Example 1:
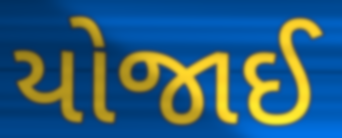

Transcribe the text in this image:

યોજાઈ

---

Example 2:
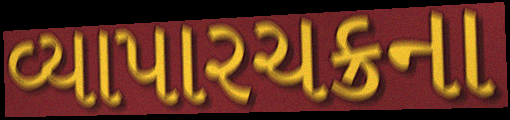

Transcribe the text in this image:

વ્યાપારચક્રના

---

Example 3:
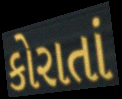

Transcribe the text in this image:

કોરાતાં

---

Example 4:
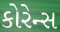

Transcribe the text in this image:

કોરેન્સ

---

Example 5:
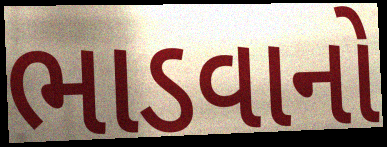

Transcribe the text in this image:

ભાડવાનો